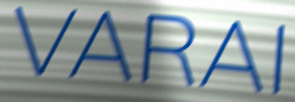
VARAI